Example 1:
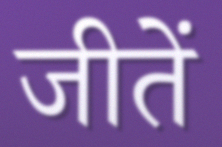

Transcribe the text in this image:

जीतें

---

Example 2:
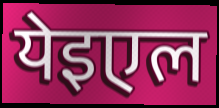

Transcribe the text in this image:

येइएल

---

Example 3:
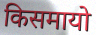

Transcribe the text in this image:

किसमायो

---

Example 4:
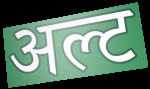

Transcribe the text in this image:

अल्ट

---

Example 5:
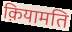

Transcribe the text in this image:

क़ियामति